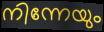
നിന്നേയും